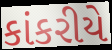
કાંકરીયે